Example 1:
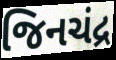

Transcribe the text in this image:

જિનચંદ્ર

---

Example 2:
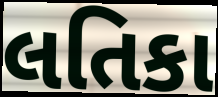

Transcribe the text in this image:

લતિકા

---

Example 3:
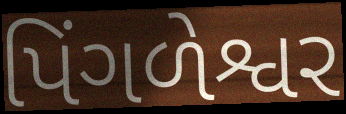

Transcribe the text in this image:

પિંગળેશ્વર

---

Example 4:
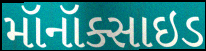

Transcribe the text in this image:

મૉનૉક્સાઇડ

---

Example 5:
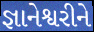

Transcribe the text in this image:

જ્ઞાનેશ્વરીને